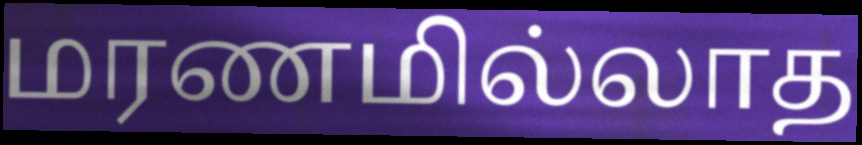
மரணமில்லாத